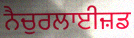
ਨੈਚੁਰਲਾਈਜ਼ਡ